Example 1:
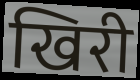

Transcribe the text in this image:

खिरी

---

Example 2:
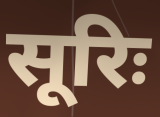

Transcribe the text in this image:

सूरिः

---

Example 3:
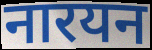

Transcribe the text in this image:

नारयन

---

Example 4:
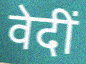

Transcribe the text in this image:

वेदीं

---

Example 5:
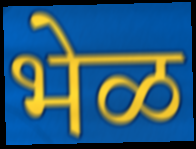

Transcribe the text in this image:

भेळ